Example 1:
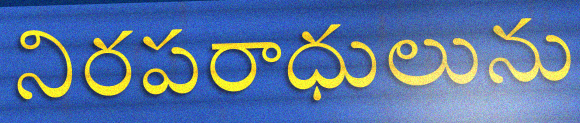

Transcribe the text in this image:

నిరపరాధులును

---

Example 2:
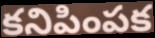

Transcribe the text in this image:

కనిపింపక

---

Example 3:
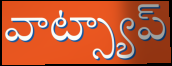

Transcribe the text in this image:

వాట్స్యాప్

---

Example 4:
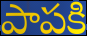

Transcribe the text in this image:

పాపకి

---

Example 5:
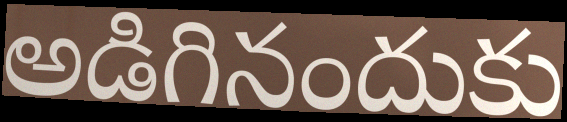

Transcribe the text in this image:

అడిగినందుకు